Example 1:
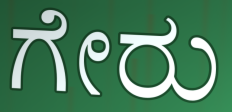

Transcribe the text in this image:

ಗೇರು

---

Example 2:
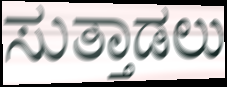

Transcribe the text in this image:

ಸುತ್ತಾಡಲು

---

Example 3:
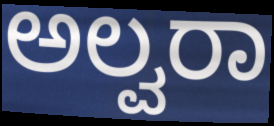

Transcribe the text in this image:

ಅಲ್ವರಾ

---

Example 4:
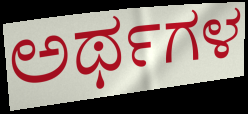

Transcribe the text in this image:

ಅರ್ಥಗಳ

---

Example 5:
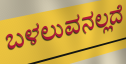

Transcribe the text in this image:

ಬಳಲುವನಲ್ಲದೆ